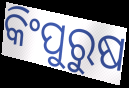
କିଂପୁରୁଷ